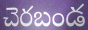
చెరబండ